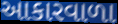
આકારવાળા